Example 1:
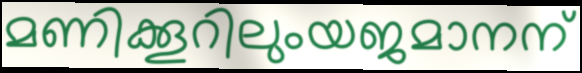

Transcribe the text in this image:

മണിക്കൂറിലുംയജമാനന്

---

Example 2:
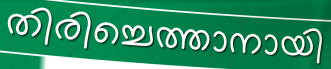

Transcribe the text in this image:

തിരിച്ചെത്താനായി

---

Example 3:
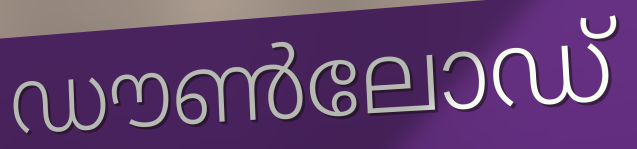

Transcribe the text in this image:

ഡൗൺലോഡ്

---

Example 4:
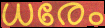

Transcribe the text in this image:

ധരേം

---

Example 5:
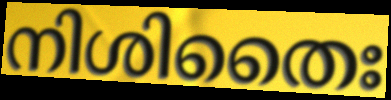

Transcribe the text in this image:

നിശിതൈഃ